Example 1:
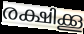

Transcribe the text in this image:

രക്ഷിക്കൂ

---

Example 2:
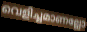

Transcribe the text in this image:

വെളിച്ചമാണല്ലോ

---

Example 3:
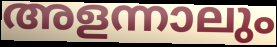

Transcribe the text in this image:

അളന്നാലും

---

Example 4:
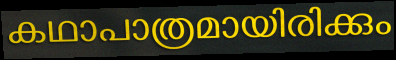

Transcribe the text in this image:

കഥാപാത്രമായിരിക്കും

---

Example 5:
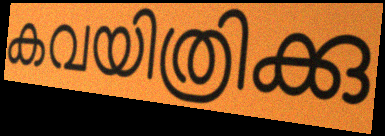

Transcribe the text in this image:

കവയിത്രിക്കു